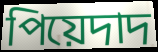
পিয়েদাদ